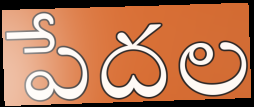
పేదల